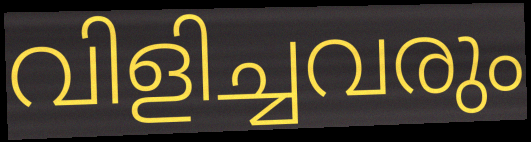
വിളിച്ചവരും